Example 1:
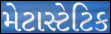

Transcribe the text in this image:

મેટાસ્ટેટિક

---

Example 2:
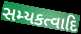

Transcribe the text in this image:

સમ્યકત્વાદિ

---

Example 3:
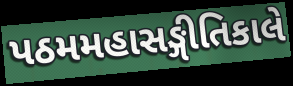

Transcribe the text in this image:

પઠમમહાસઙ્ગીતિકાલે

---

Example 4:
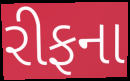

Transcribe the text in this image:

રીફના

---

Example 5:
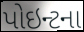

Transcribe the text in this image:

પોઇન્ટના